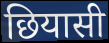
छियासी